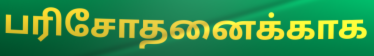
பரிசோதனைக்காக